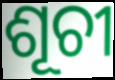
ଶୂଚୀ